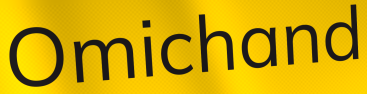
Omichand